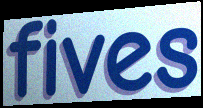
fives